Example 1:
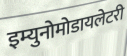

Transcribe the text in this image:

इम्युनोमोडायलेटरी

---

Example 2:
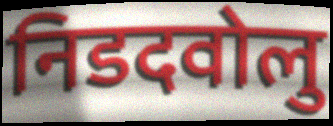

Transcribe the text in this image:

निडदवोलु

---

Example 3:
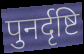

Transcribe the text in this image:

पुनर्दृष्टि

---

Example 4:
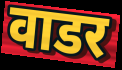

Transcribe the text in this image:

वाडर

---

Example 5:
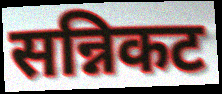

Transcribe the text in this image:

सन्निकट